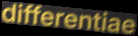
differentiae